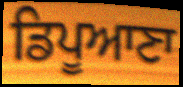
ਡਿਪੂਆਣਾ